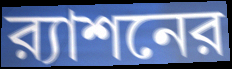
র‍্যাশনের